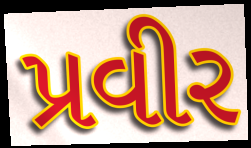
પ્રવીર